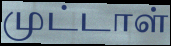
முட்டாள்